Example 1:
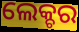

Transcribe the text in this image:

ଲେକ୍ଚର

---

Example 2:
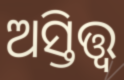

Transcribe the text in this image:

ଅସ୍ତିତ୍ତ୍ବ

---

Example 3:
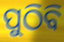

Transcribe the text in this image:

ପୁଠିବି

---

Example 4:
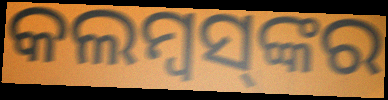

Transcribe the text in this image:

କଲମ୍ୱସ୍‌ଙ୍କର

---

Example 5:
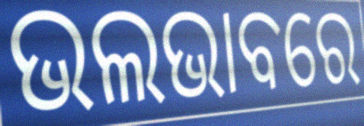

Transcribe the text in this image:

ଭଲଭାବରେ